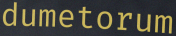
dumetorum